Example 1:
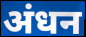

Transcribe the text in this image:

अंधन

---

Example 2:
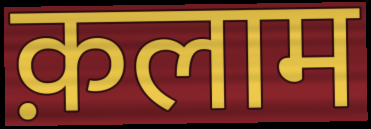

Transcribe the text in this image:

क़लाम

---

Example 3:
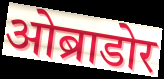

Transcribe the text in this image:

ओब्राडोर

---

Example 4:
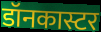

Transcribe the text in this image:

डॉनकास्टर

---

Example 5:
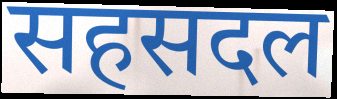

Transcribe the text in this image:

सहसदल